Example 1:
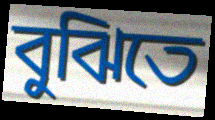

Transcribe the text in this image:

বুঝিতে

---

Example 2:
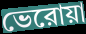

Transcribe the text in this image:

ভেরোয়া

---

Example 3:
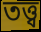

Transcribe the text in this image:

তত্ত্ব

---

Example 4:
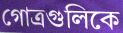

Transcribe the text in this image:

গোত্রগুলিকে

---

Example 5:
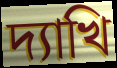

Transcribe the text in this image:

দ্যাখি